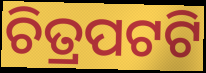
ଚିତ୍ରପଟଟି